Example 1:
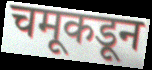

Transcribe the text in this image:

चमूकडून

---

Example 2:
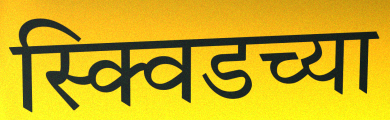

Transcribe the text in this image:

स्क्विडच्या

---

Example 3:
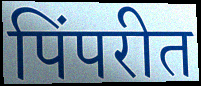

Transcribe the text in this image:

पिंपरीत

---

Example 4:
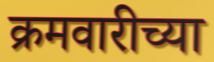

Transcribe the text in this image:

क्रमवारीच्या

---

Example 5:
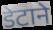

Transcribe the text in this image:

डेटाने